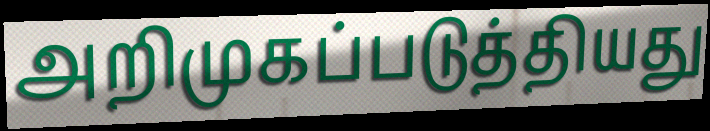
அறிமுகப்படுத்தியது